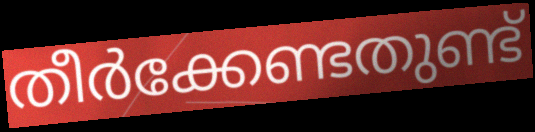
തീർക്കേണ്ടതുണ്ട്